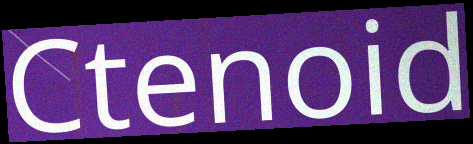
Ctenoid